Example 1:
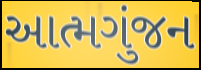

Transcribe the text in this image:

આત્મગુંજન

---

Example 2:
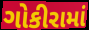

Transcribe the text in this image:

ગોકીરામાં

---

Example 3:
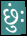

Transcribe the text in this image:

છુંઃ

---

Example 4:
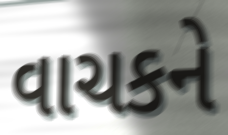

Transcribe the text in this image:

વાચકને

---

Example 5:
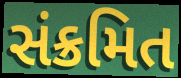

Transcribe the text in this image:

સંક્રમિત